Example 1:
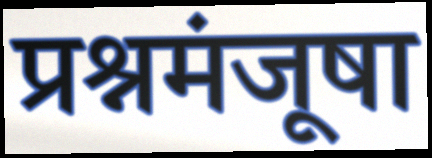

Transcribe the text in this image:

प्रश्नमंजूषा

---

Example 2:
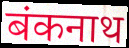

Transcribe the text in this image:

बंकनाथ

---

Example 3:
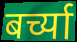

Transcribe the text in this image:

बर्च्या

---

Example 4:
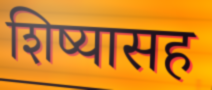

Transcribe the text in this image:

शिष्यासह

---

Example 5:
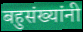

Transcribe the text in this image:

बहुसंख्यांनी